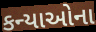
કન્યાઓના